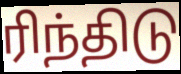
ரிந்திடு